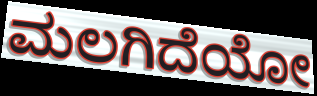
ಮಲಗಿದೆಯೋ